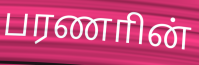
பரணரின்